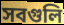
সবগুলি